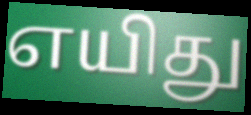
எயிது